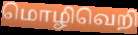
மொழிவெறி